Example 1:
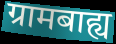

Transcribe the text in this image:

ग्रामबाह्य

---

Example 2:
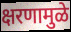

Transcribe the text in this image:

क्षरणामुळे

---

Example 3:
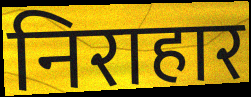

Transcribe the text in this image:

निराहार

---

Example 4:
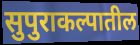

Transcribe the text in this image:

सुपुराकल्पातील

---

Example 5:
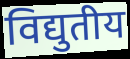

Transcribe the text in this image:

विद्युतीय